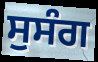
ਸੁਸੰਗ